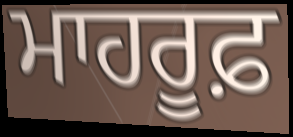
ਮਾਹਰੂਫ਼